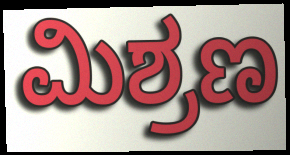
ಮಿಶ್ರಣ